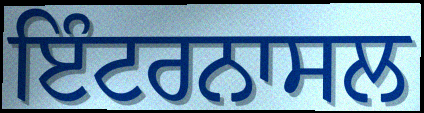
ਇੰਟਰਨਾਸਲ